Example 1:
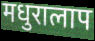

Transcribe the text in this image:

मधुरालाप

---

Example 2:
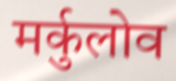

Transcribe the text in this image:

मर्कुलोव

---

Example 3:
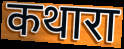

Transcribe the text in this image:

कथारा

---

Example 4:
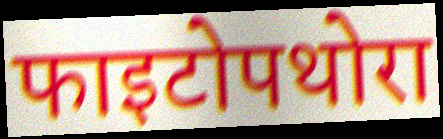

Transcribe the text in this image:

फाइटोपथोरा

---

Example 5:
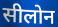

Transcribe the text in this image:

सीलोन